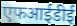
एफआईडीई